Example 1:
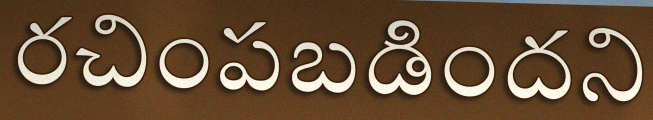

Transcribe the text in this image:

రచింపబడిందని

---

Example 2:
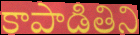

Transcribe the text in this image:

కాపాడితిని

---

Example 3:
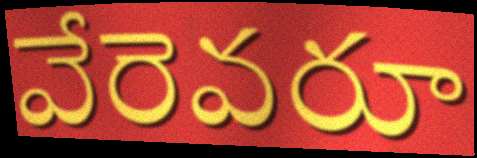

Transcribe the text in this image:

వేరెవరూ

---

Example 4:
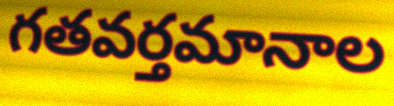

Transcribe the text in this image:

గతవర్తమానాల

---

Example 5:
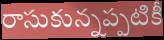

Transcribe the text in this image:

రాసుకున్నప్పటికీ